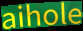
aihole